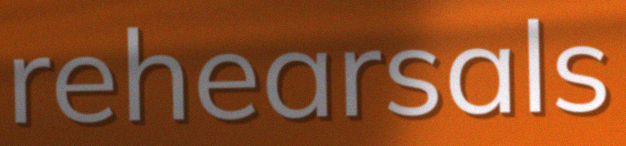
rehearsals